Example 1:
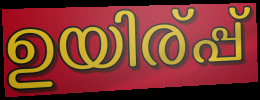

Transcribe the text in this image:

ഉയിര്പ്പ്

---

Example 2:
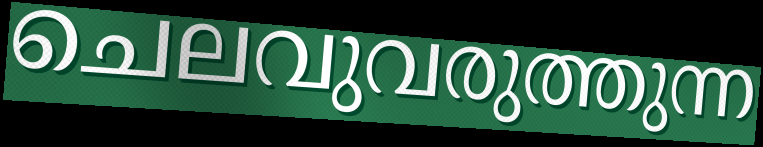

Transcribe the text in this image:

ചെലവുവരുത്തുന്ന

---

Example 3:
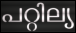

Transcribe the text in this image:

പറ്റില്യ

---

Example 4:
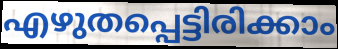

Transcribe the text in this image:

എഴുതപ്പെട്ടിരിക്കാം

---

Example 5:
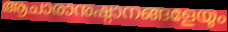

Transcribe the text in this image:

ആചാരാനുഷ്ഠാനങ്ങളേയും